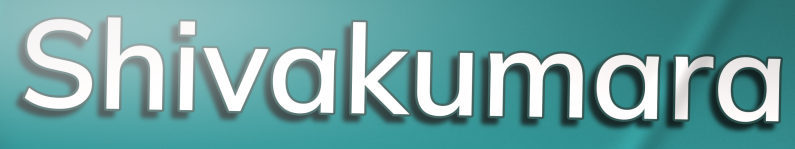
Shivakumara